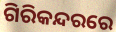
ଗିରିକନ୍ଦରରେ